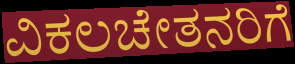
ವಿಕಲಚೇತನರಿಗೆ